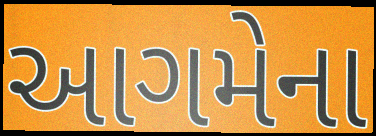
આગમેના